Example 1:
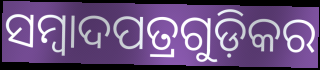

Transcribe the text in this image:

ସମ୍ୱାଦପତ୍ରଗୁଡ଼ିକର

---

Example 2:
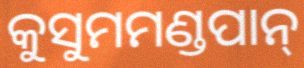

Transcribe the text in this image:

କୁସୁମମଣ୍ଡପାନ୍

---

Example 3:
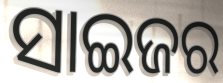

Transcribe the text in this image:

ସାଇଜର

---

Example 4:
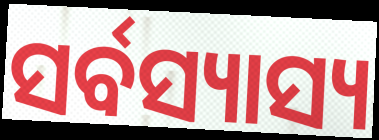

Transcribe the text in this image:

ସର୍ବସ୍ୟାସ୍ୟ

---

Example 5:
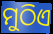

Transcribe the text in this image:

ମୁଠିଏ